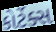
કોર્ટેક્સ